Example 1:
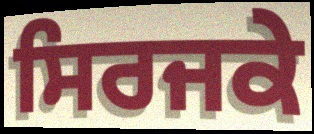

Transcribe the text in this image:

ਸਿਰਜਕੇ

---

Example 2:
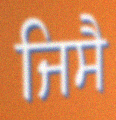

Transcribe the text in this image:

ਜਿਸੈ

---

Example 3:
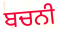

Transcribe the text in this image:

ਬਚਨੀ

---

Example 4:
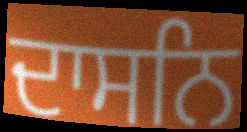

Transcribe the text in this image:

ਦਾਸਨਿ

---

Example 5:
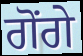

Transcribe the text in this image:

ਗੋਂਗੇ